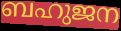
ബഹുജന